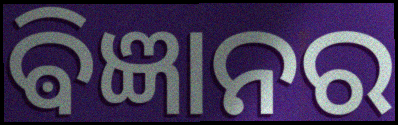
ଵିଜ୍ଞାନର